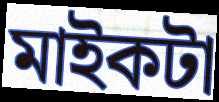
মাইকটা